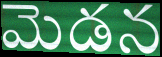
మెడన